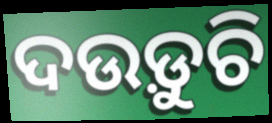
ଦଉଡ଼ୁଚି